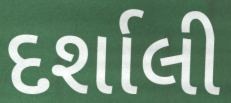
દર્શાલી